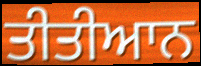
ਤੀਤੀਆਨ